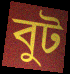
বুট